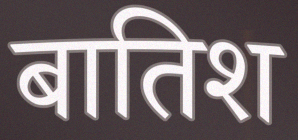
बातिश